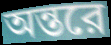
অন্তরে